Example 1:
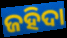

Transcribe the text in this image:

ଜହିଦା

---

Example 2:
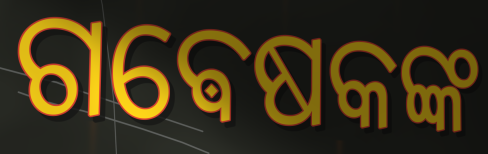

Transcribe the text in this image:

ଗଵେଷକଙ୍କ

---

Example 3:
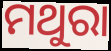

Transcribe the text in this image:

ମଥୁରା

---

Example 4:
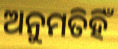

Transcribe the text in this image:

ଅନୁମତିହିଁ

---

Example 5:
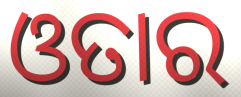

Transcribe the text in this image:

ଓତାର